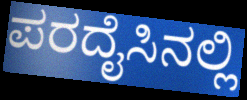
ಪರದೈಸಿನಲ್ಲಿ